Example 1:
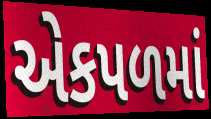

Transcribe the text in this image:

એકપળમાં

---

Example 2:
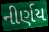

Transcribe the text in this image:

નીર્ણય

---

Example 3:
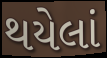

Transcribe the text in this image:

થયેલાં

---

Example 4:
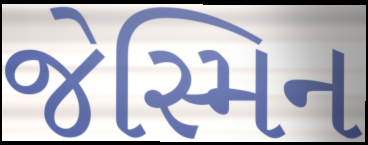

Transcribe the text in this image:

જેસ્મિન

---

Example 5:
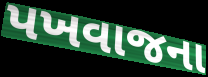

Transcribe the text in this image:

પખવાજના